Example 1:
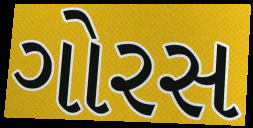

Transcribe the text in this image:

ગોરસ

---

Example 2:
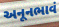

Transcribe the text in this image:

અનૂનભાવં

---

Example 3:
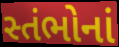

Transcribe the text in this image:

સ્તંભોનાં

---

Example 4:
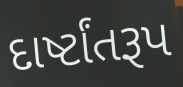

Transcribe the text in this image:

દાર્ષ્ટાંતરૂપ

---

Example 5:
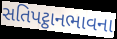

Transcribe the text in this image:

સતિપટ્ઠાનભાવના